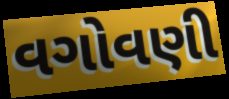
વગોવણી